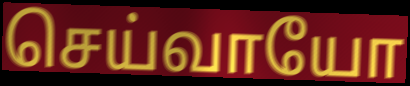
செய்வாயோ